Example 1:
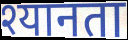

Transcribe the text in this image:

श्यानता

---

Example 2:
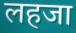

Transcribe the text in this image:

लहजा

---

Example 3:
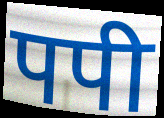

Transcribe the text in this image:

पपी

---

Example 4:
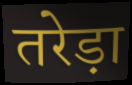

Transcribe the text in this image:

तरेड़ा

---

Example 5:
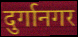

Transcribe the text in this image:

दुर्गानगर